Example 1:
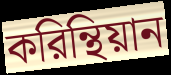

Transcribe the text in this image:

করিন্থিয়ান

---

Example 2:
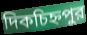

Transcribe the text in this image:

দিকচিহ্নপুর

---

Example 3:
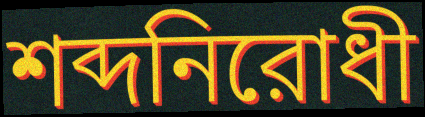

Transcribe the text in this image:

শব্দনিরোধী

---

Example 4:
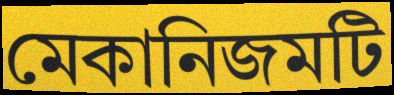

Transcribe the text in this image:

মেকানিজমটি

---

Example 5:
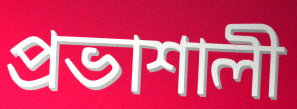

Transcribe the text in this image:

প্রভাশালী